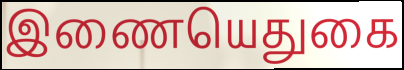
இணையெதுகை